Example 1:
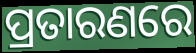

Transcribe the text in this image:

ପ୍ରତାରଣରେ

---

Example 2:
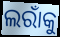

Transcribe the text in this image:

ଲରାଁକୁ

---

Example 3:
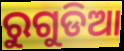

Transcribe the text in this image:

ରୁଗୁଡିଆ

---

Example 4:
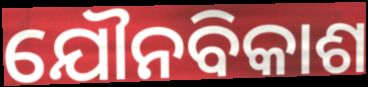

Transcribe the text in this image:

ଯୌନବିକାଶ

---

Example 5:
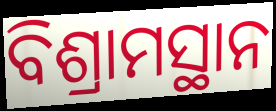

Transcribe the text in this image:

ବିଶ୍ରାମସ୍ଥାନ